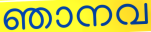
ഞാനവ